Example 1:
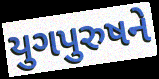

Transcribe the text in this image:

યુગપુરુષને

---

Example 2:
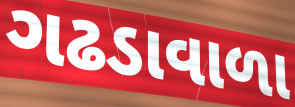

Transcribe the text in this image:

ગઢડાવાળા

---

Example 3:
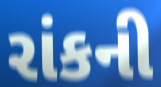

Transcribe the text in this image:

રાંકની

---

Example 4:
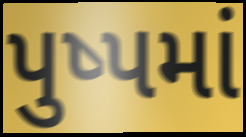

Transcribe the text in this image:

પુષ્પમાં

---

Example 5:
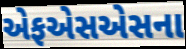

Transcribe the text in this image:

એફએસએસના